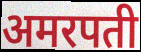
अमरपती